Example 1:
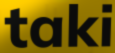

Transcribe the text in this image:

taki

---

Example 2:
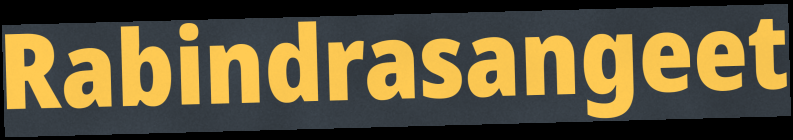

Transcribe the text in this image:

Rabindrasangeet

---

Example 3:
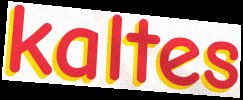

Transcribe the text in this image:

kaltes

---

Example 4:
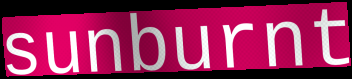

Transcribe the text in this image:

sunburnt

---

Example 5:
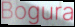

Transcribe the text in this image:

Bogura